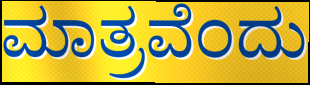
ಮಾತ್ರವೆಂದು